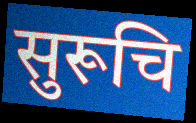
सुरूचि